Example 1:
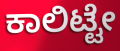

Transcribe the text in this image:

ಕಾಲಿಟ್ಟೇ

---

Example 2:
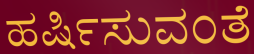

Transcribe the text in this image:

ಹರ್ಷಿಸುವಂತೆ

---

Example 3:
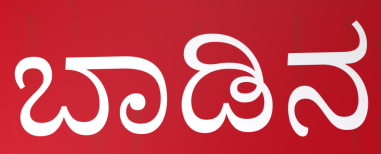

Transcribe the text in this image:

ಬಾಡಿನ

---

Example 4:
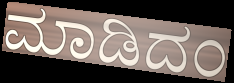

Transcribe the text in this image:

ಮಾಡಿದಂ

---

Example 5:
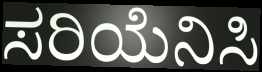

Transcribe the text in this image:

ಸರಿಯೆನಿಸಿ